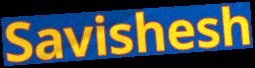
Savishesh